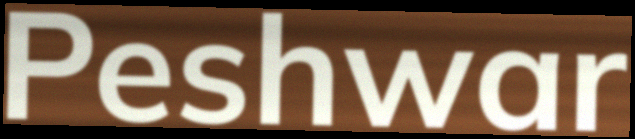
Peshwar